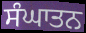
ਸੰਘਾਤਨ